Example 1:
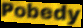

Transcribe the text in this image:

Pobedy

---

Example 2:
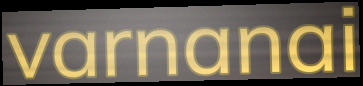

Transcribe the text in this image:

varnanai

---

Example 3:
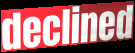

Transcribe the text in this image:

declined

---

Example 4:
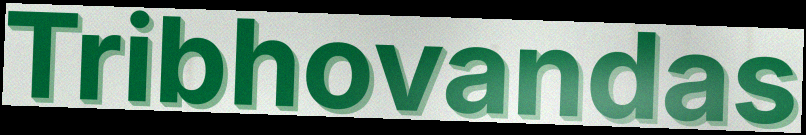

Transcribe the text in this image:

Tribhovandas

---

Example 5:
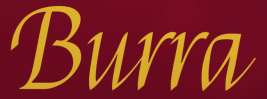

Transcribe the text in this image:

Burra